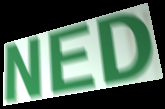
NED